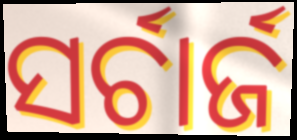
ସର୍ଚାର୍ଜ